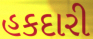
હકદારી